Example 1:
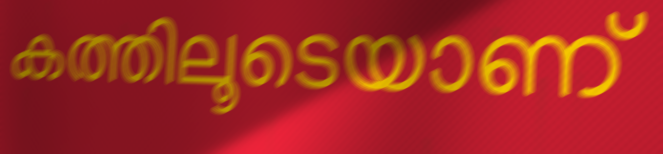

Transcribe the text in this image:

കത്തിലൂടെയാണ്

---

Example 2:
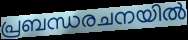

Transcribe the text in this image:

പ്രബന്ധരചനയിൽ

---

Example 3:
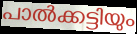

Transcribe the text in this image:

പാൽക്കട്ടിയും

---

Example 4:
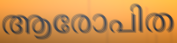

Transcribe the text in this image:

ആരോപിത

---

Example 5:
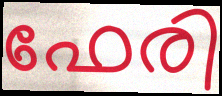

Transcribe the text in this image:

ഫേരി